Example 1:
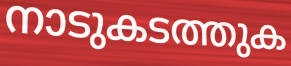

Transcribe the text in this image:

നാടുകടത്തുക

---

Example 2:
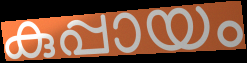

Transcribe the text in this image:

കുപ്പായം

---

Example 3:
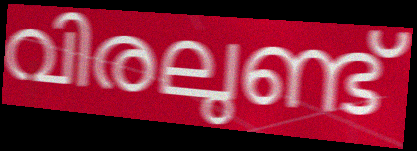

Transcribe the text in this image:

വിരലുണ്ട്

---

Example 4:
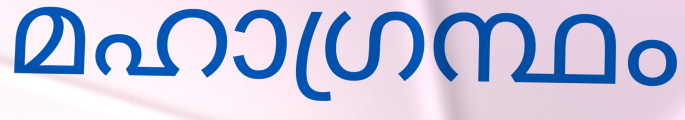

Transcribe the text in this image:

മഹാഗ്രന്ഥം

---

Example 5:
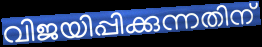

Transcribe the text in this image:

വിജയിപ്പിക്കുന്നതിന്